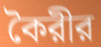
কৈরীর